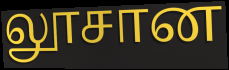
லூசான